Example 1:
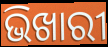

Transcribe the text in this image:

ଭିଖାରୀ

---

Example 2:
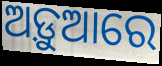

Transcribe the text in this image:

ଅଡ଼ୁଆରେ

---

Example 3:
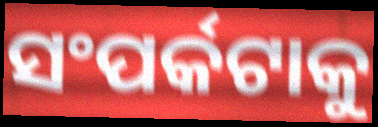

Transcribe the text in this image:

ସଂପର୍କଟାକୁ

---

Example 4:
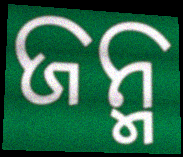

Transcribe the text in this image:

ଜନ୍ମ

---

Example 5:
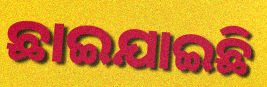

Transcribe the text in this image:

ଛାଇଯାଇଛି